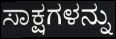
ಸಾಕ್ಷಗಳನ್ನು